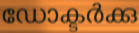
ഡോക്ടർക്കു